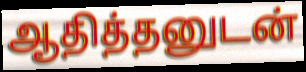
ஆதித்தனுடன்